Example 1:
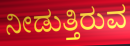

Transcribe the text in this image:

ನೀಡುತ್ತಿರುವ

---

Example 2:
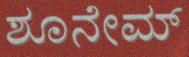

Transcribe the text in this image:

ಶೂನೇಮ್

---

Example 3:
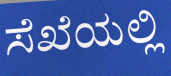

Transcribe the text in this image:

ಸೆಖೆಯಲ್ಲಿ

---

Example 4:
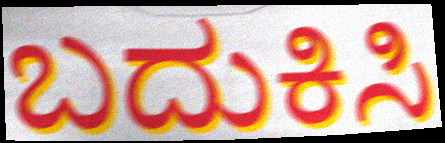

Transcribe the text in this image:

ಬದುಕಿಸಿ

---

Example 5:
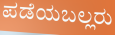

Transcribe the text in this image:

ಪಡೆಯಬಲ್ಲರು